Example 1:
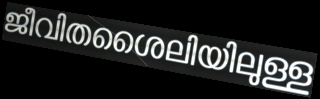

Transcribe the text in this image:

ജീവിതശൈലിയിലുള്ള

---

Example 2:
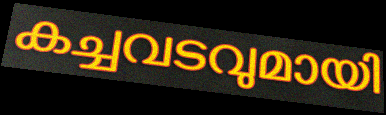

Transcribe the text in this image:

കച്ചവടവുമായി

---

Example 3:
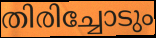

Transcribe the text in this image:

തിരിച്ചോടും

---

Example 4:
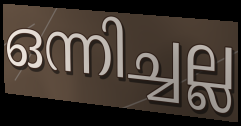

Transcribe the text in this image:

ഒന്നിച്ചല്ല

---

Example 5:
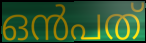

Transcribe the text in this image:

ഒൻപത്